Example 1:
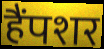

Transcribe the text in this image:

हैंपशर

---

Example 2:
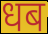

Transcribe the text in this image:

धब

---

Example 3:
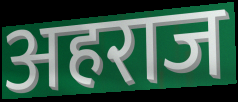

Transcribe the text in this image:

अहराज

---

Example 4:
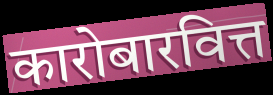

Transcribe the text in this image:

कारोबारवित्त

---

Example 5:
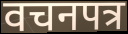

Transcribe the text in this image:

वचनपत्र